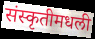
संस्कृतीमधली